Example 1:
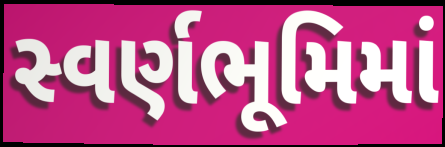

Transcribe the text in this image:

સ્વર્ણભૂમિમાં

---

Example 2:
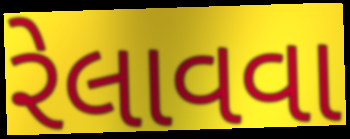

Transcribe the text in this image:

રેલાવવા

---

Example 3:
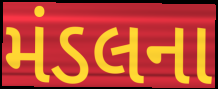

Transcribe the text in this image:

મંડલના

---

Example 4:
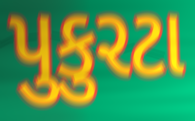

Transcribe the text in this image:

પુકુરટા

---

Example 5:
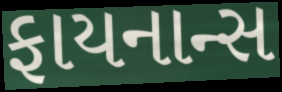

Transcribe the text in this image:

ફાયનાન્સ